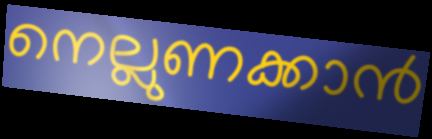
നെല്ലുണക്കാൻ